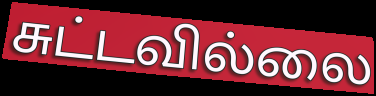
சுட்டவில்லை